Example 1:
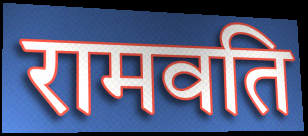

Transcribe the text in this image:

रामवति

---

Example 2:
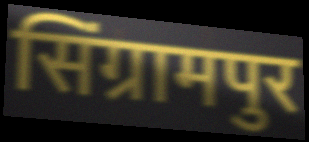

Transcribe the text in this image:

सिंग्रामपुर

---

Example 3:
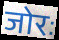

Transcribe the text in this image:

जोरः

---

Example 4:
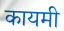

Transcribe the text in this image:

कायमी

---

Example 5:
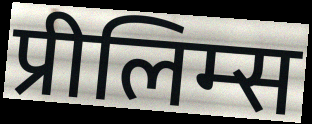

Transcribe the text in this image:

प्रीलिम्स